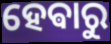
ହେଵାରୁ